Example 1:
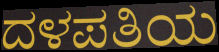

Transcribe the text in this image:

ದಳಪತಿಯ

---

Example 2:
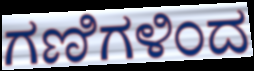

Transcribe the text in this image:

ಗಣಿಗಳಿಂದ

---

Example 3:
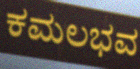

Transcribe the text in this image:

ಕಮಲಭವ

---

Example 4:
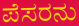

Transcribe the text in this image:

ಪೆಸರನು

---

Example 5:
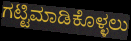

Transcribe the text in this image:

ಗಟ್ಟಿಮಾಡಿಕೊಳ್ಳಲು